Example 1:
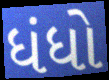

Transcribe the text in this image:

ધંધો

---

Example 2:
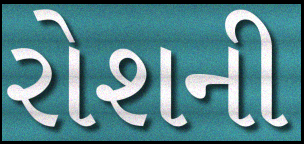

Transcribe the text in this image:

રોશની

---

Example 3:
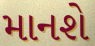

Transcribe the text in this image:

માનશે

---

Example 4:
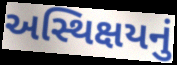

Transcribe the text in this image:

અસ્થિક્ષયનું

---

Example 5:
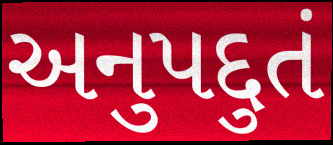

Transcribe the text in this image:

અનુપદ્દુતં